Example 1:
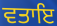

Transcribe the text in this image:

ਵਤਾਇ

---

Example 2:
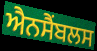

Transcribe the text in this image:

ਐਨਸੈਂਬਲਸ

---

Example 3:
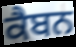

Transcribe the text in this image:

ਕੈਬਨ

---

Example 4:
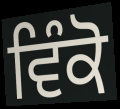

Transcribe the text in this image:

ਵਿੰਕੋ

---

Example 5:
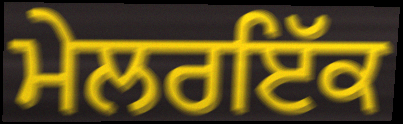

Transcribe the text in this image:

ਮੇਲਰਇੱਕ